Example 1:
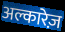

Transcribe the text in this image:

अल्कारेज़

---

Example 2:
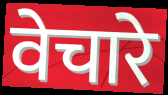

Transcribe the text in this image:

वेचारे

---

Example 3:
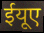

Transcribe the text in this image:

ईयूए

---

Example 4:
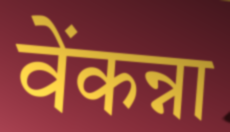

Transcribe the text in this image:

वेंकन्ना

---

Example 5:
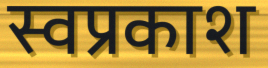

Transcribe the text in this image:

स्वप्रकाश